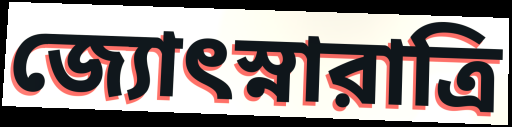
জ্যোৎস্নারাত্রি